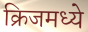
क्रिजमध्ये